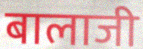
बालाजी